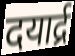
दयार्द्र